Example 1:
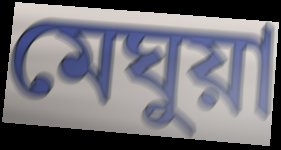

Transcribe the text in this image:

মেঘুয়া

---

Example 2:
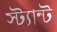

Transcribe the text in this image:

স্ট্যান্ট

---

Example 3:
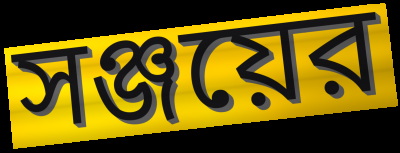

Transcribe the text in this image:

সঞ্জয়ের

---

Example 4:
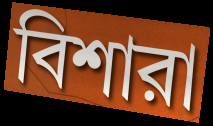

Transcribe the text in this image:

বিশারা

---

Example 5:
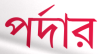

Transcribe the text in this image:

পর্দার